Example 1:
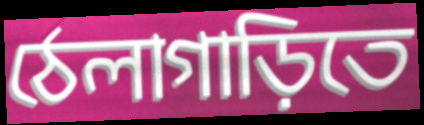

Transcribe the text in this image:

ঠেলাগাড়িতে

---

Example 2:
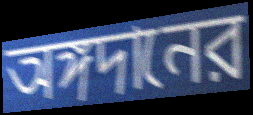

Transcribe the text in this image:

অঙ্গদানের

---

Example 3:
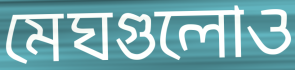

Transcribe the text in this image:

মেঘগুলোও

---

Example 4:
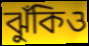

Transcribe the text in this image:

ঝুঁকিও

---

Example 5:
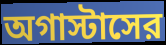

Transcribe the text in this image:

অগাস্টাসের